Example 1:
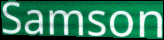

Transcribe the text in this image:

Samson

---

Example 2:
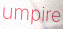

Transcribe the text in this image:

umpire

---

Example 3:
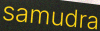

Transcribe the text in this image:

samudra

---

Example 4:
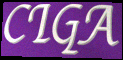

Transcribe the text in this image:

CIGA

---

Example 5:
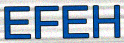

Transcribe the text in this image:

EFEH